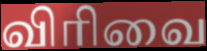
விரிவை